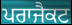
ਪਰਾਜੈਕਟ